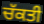
ਚੱਕਤੀ